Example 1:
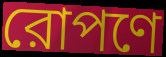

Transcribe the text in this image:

রোপণে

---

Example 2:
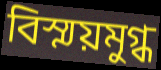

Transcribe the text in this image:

বিস্ময়মুগ্ধ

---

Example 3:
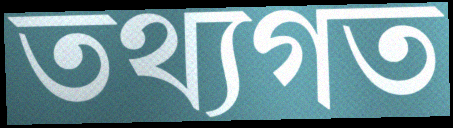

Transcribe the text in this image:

তথ্যগত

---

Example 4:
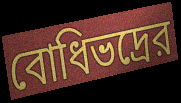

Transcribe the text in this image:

বোধিভদ্রের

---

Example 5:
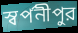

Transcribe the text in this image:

স্বর্পনীপুর